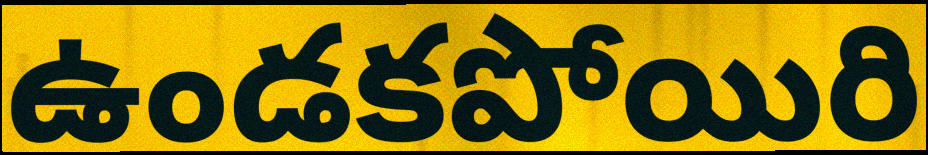
ఉండకపోయిరి